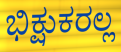
ಭಿಕ್ಷುಕರಲ್ಲ